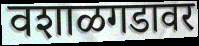
वशाळगडावर